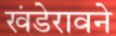
खंडेरावने